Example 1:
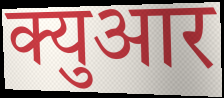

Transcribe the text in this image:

क्युआर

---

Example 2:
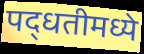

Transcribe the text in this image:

पद्धतीमध्ये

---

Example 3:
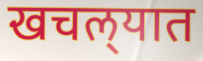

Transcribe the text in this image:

खचल्यात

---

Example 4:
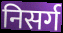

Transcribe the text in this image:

निसर्ग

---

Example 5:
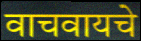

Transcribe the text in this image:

वाचवायचे